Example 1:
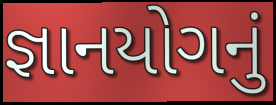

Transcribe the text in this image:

જ્ઞાનયોગનું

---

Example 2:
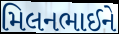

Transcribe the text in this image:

મિલનભાઈને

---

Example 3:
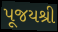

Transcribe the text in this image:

પૂજયશ્રી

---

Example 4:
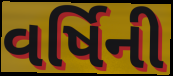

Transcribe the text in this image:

વર્ષિની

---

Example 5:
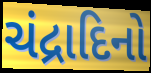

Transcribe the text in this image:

ચંદ્રાદિનો